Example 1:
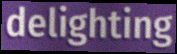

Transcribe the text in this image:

delighting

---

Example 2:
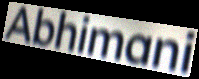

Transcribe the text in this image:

Abhimani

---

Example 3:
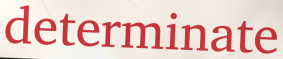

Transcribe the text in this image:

determinate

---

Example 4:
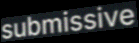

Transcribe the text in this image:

submissive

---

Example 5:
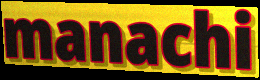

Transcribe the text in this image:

manachi